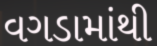
વગડામાંથી